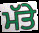
ਮੱਤੇ